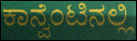
ಕಾನ್ವೆಂಟಿನಲ್ಲಿ